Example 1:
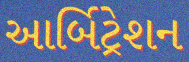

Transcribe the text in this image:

આર્બિટ્રેશન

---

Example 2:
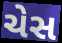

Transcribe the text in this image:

ચેસ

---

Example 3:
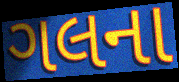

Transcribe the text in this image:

ગલના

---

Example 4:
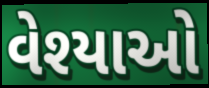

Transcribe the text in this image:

વેશ્યાઓ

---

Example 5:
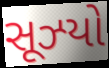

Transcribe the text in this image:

સૂઝ્યો